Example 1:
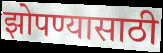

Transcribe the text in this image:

झोपण्यासाठी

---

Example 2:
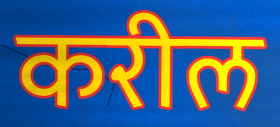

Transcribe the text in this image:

करील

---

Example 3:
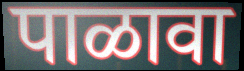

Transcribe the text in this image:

पाळावा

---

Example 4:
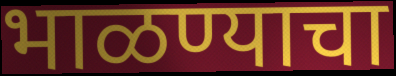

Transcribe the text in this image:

भाळण्याचा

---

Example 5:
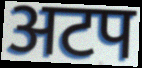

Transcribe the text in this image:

अटप